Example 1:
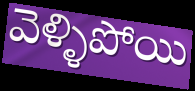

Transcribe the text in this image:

వెళ్ళిపోయి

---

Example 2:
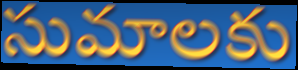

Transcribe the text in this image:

సుమాలకు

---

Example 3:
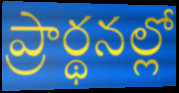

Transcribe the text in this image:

ప్రార్థనల్లో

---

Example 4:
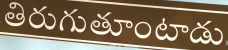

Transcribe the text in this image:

తిరుగుతూంటాడు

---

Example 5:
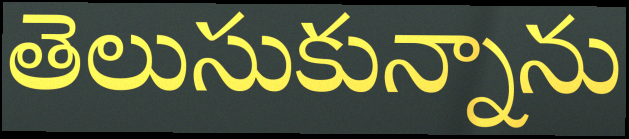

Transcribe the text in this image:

తెలుసుకున్నాను